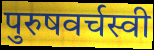
पुरुषवर्चस्वी